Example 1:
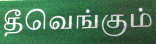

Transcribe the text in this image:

தீவெங்கும்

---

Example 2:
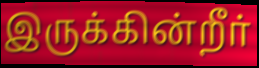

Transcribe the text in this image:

இருக்கின்றீர்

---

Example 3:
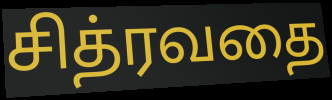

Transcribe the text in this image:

சித்ரவதை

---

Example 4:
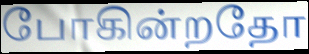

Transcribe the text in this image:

போகின்றதோ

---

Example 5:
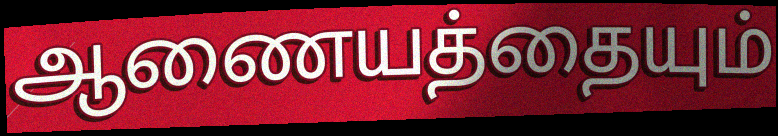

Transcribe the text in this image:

ஆணையத்தையும்